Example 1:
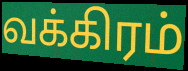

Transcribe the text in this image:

வக்கிரம்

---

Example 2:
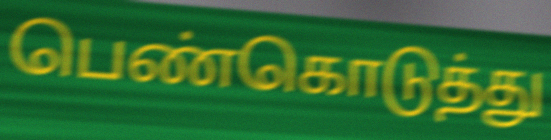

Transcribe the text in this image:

பெண்கொடுத்து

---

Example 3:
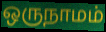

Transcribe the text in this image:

ஒருநாமம்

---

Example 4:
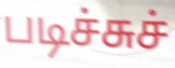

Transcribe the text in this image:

படிச்சுச்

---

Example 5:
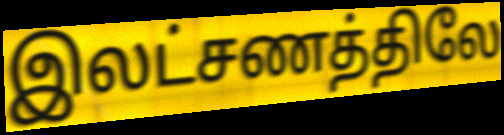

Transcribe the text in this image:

இலட்சணத்திலே